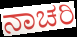
ನಾಚರಿ